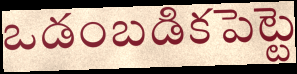
ఒడంబడికపెట్టె